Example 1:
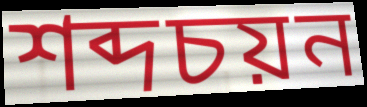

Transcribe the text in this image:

শব্দচয়ন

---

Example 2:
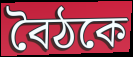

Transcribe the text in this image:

বৈঠকে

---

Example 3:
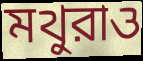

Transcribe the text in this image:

মথুরাও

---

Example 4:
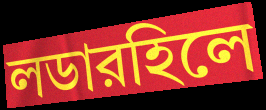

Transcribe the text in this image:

লডারহিলে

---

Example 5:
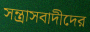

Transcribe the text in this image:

সন্ত্রাসবাদীদের